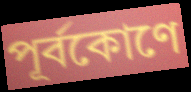
পূর্বকোণে